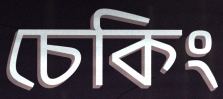
চেকিং